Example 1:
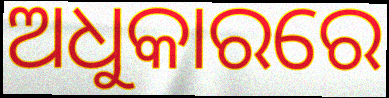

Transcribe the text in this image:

ଅଧୁକାରରେ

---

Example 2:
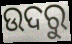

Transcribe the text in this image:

ଉଦରୁ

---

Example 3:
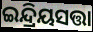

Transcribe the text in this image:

ଇନ୍ଦ୍ରିୟସତ୍ତା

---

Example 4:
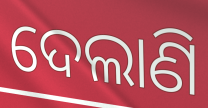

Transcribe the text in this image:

ଦେଲାଣି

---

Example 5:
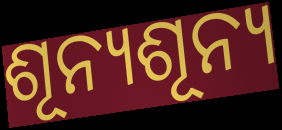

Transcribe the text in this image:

ଶୂନ୍ୟଶୂନ୍ୟ